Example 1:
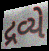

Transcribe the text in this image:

દ્રવ્યે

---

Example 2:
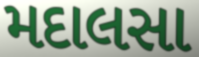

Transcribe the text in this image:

મદાલસા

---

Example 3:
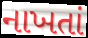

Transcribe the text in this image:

નાખતાં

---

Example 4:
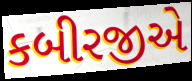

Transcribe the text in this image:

કબીરજીએ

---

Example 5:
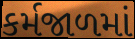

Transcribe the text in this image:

કર્મજાળમાં